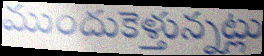
ముందుకెళ్తున్నట్లు